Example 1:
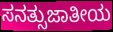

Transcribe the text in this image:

ಸನತ್ಸುಜಾತೀಯ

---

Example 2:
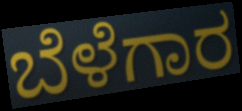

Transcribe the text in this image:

ಬೆಳೆಗಾರ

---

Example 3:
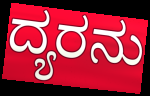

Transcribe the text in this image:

ದ್ಯರನು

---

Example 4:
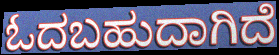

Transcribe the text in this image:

ಓದಬಹುದಾಗಿದೆ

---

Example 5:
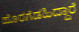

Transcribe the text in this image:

ಹೊರಗೆಡಹಿದ್ದಾರೆ